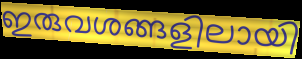
ഇരുവശങ്ങളിലായി